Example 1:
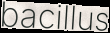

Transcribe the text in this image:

bacillus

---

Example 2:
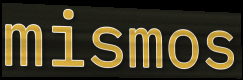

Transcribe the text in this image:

mismos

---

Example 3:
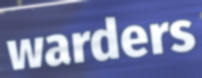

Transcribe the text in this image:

warders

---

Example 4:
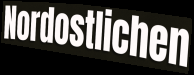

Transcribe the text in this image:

Nordostlichen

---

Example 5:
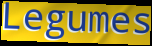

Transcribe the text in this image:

Legumes